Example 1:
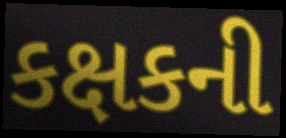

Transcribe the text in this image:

કક્ષકની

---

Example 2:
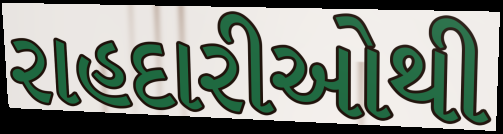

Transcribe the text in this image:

રાહદારીઓથી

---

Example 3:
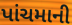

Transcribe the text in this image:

પાંચમાની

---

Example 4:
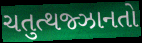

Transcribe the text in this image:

ચતુત્થજ્ઝાનતો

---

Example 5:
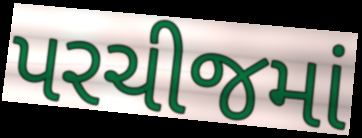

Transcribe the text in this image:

પરચીજમાં